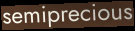
semiprecious